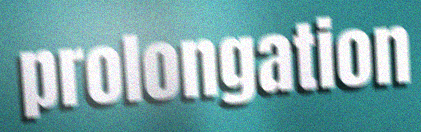
prolongation